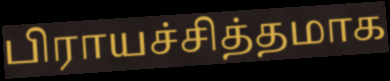
பிராயச்சித்தமாக